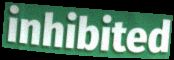
inhibited